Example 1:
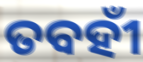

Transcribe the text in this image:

ତବହୀଁ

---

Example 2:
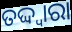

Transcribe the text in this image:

ତଦ୍ଦ୍ଵାରା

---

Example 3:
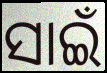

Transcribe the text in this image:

ସାଇଁ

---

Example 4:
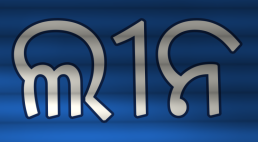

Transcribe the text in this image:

ଲୀନ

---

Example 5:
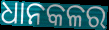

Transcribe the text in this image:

ଧାନକଳର